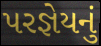
પરજ્ઞેયનું